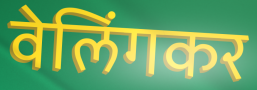
वेलिंगकर